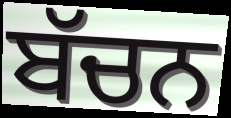
ਬੱਚਨ